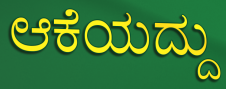
ಆಕೆಯದ್ದು